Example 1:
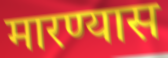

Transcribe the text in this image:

मारण्यास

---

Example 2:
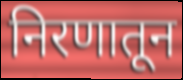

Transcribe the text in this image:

निरणातून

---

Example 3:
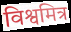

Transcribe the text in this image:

विश्वमित्र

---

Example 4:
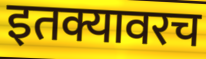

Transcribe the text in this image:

इतक्यावरच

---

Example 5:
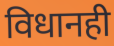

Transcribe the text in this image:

विधानही